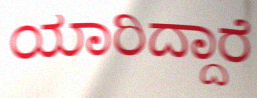
ಯಾರಿದ್ದಾರೆ